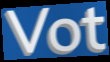
Vot